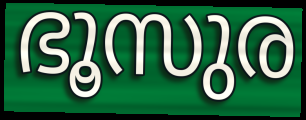
ഭൂസുര